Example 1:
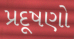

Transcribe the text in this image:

પ્રદૂષણો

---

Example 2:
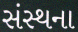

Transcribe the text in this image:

સંસ્થના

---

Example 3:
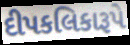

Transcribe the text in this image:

દીપકલિકારૂપે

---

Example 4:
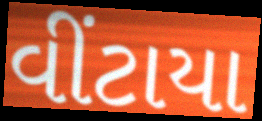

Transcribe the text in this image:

વીંટાયા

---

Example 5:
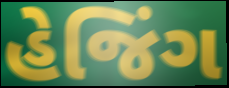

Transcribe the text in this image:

હેજિંગ